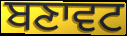
ਬਣਾਵਟ